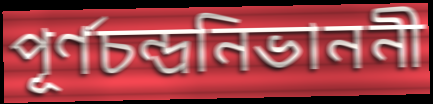
পূর্ণচন্দ্রনিভাননী